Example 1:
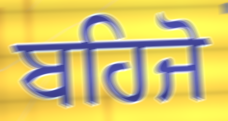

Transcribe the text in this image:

ਬਹਿਜੋ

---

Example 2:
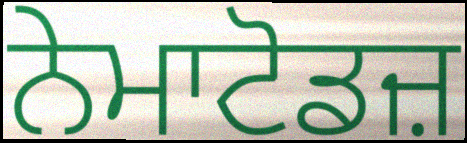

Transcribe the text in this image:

ਨੇਮਾਟੋਡਜ਼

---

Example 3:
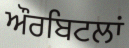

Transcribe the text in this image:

ਔਰਬਿਟਲਾਂ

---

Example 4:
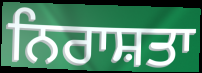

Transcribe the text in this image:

ਨਿਰਾਸ਼ਤਾ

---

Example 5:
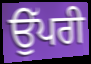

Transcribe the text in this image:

ਉੱਪਰੀ